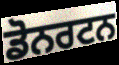
ਡੋਨਰਟਨ